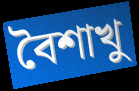
বৈশাখু